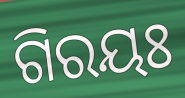
ଗିରୟଃ